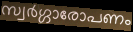
സ്വർഗ്ഗാരോപണം